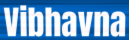
Vibhavna